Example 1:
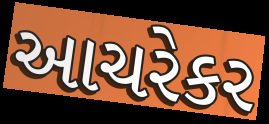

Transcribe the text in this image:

આચરેકર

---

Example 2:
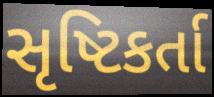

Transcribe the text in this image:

સૃષ્ટિકર્તા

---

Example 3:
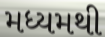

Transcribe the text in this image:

મધ્યમથી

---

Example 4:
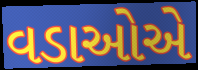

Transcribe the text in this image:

વડાઓએ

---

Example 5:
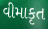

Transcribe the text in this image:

વીમાકૃત